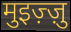
मुइज़्ज़ु